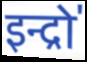
इन्द्रो॑